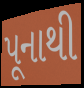
પૂનાથી